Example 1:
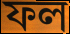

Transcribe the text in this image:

ফল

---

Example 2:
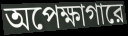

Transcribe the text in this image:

অপেক্ষাগারে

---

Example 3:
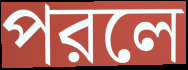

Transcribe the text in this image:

পরলে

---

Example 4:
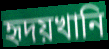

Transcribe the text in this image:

হৃদয়খানি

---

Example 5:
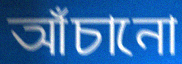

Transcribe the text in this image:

আঁচানো